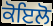
ਕੋਇਲੋ